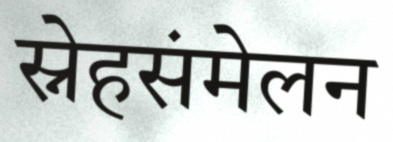
स्नेहसंमेलन